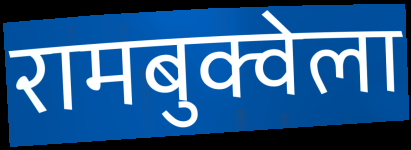
रामबुक्वेला